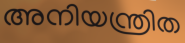
അനിയന്ത്രിത